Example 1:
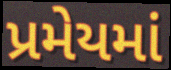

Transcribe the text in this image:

પ્રમેયમાં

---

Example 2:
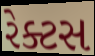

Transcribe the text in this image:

રેક્ટસ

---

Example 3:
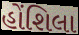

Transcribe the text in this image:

હોંશિલા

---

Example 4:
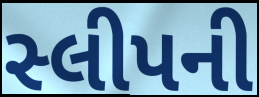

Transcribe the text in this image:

સ્લીપની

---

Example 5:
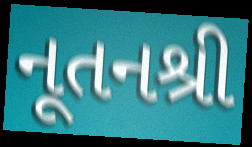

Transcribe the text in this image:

નૂતનશ્રી